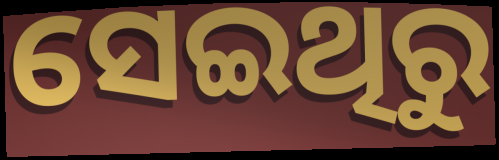
ସେଇଥିରୁ